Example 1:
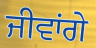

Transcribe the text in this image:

ਜੀਵਾਂਗੇ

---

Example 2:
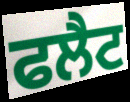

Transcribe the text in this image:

ਫਲੈਟ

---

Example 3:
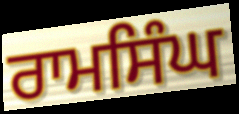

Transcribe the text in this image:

ਰਾਮਸਿੰਘ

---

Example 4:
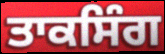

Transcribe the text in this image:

ਤਾਕਸਿੰਗ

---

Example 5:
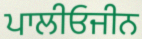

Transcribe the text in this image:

ਪਾਲੀਓਜੀਨ